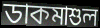
ডাকমাশুল